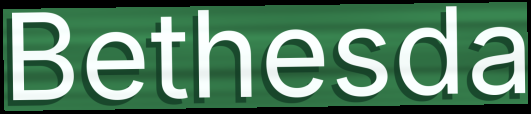
Bethesda